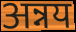
अन्नय